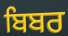
ਬਿਬਰ